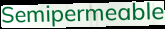
Semipermeable